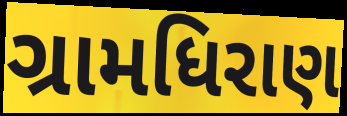
ગ્રામધિરાણ